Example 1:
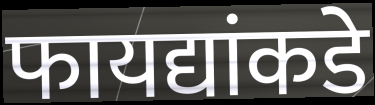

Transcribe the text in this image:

फायद्यांकडे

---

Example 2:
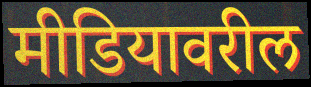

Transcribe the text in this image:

मीडियावरील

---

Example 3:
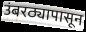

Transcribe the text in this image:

उंबरठ्यापासून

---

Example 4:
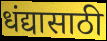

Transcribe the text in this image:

धंद्यासाठी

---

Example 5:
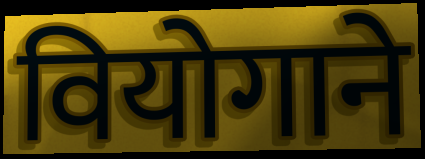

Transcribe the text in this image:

वियोगाने